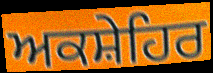
ਅਕਸ਼ੇਹਿਰ